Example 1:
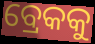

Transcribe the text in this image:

ବ୍ରେକକୁ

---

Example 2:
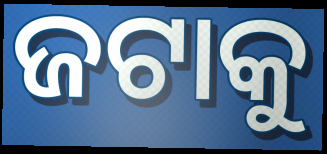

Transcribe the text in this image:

ଜଟାକୁ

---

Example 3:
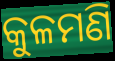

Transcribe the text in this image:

କୁଳମଣି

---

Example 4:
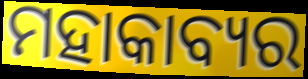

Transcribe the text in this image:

ମହାକାବ୍ୟର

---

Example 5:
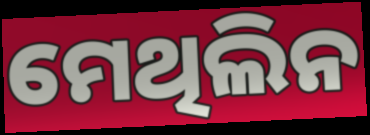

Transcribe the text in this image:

ମେଥିଲିନ